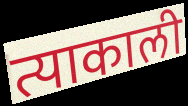
त्याकाली